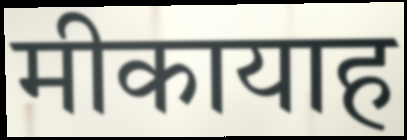
मीकायाह